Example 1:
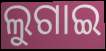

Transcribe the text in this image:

ଲୁଗାଇ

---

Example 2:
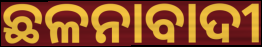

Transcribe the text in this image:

ଛଳନାବାଦୀ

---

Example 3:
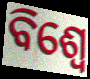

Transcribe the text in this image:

ବିଶ୍ଵେ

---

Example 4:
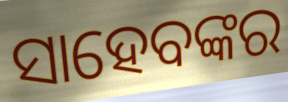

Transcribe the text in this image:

ସାହେବଙ୍କର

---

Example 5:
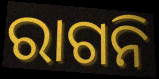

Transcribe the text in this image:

ରାଗନି